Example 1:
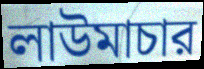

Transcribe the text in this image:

লাউমাচার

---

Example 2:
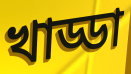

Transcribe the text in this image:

খাড্ডা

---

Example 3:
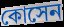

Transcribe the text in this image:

কোসেন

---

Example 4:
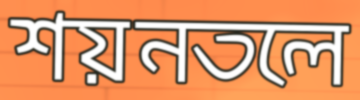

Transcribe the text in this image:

শয়নতলে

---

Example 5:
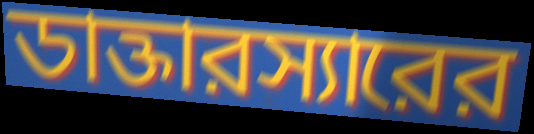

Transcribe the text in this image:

ডাক্তারস্যারের